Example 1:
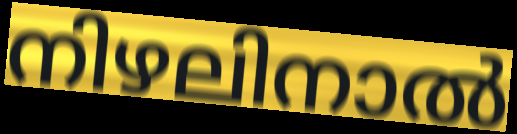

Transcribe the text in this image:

നിഴലിനാൽ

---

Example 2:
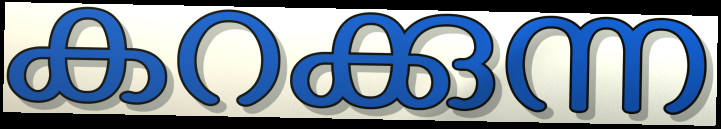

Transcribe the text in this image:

കറക്കുന്ന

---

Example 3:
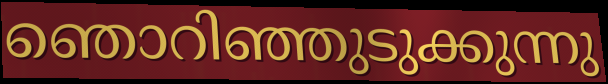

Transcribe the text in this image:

ഞൊറിഞ്ഞുടുക്കുന്നു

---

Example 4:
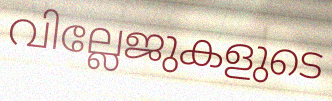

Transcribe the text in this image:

വില്ലേജുകളുടെ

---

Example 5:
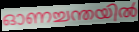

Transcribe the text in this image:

ഓണച്ചന്തയിൽ